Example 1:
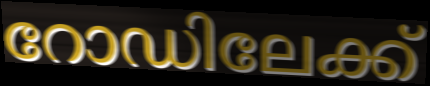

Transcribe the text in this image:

റോഡിലേക്ക്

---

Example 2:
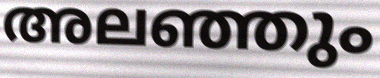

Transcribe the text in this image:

അലഞ്ഞും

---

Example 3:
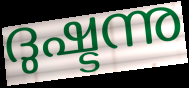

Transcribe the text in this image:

ദുഷ്ടന്നു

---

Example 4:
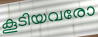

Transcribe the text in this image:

കൂടിയവരോ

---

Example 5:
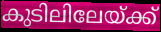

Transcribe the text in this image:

കുടിലിലേയ്ക്ക്